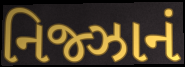
નિજ્ઝાનં